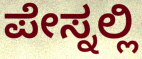
ಪೇಸ್ನಲ್ಲಿ